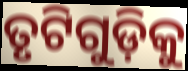
ତୃଟିଗୁଡ଼ିକୁ